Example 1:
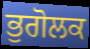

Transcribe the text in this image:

ਭੁਗੋਲਕ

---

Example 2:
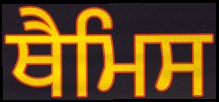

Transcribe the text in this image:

ਥੈਮਿਸ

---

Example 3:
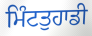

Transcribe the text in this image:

ਮਿੰਟਤੁਹਾਡੀ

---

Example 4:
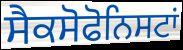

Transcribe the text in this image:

ਸੈਕਸੋਫੋਨਿਸਟਾਂ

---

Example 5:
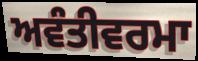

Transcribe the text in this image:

ਅਵੰਤੀਵਰਮਾ